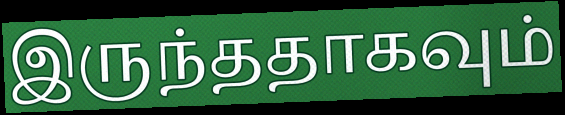
இருந்ததாகவும்